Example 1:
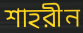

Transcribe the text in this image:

শাহরীন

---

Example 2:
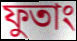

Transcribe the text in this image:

ফুতাং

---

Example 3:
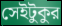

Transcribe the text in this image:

সেইটুকুর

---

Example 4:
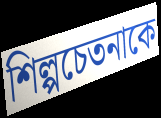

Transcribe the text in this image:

শিল্পচেতনাকে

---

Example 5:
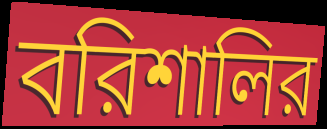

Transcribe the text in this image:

বরিশালির